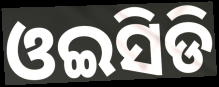
ଓଇସିଡି